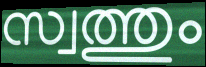
സ്വത്തും